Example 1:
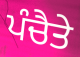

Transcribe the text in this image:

ਪੰਚੈਤੇ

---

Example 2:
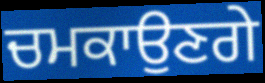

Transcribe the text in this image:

ਚਮਕਾਉਣਗੇ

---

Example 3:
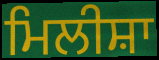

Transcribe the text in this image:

ਮਿਲੀਸ਼ਾ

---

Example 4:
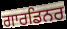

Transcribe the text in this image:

ਗਾਰਡਿਨਰ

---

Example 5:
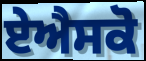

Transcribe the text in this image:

ਏਐਸਕੋ